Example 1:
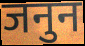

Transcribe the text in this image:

जनुन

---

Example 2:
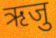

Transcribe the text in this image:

ऋजु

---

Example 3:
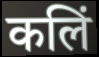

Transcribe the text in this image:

कलिं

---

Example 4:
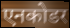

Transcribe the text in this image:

एनकोडर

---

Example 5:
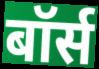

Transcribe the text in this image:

बॉर्स